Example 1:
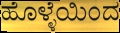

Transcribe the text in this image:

ಹೊಳ್ಳೆಯಿಂದ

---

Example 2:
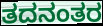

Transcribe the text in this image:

ತದನಂತರ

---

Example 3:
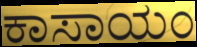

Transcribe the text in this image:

ಕಾಸಾಯಂ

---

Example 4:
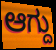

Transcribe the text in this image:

ಆಗ್ದು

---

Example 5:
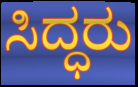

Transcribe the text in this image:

ಸಿದ್ಧರು